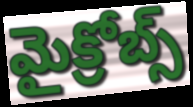
మైక్రోబ్స్